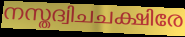
നസ്തദ്വിചചക്ഷിരേ